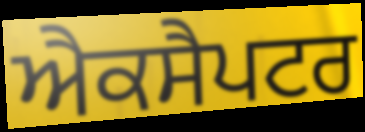
ਐਕਸੈਪਟਰ